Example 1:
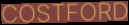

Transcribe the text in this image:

COSTFORD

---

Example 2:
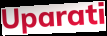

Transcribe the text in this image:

Uparati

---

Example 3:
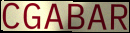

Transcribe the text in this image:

CGABAR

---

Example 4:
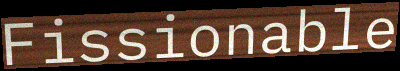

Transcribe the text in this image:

Fissionable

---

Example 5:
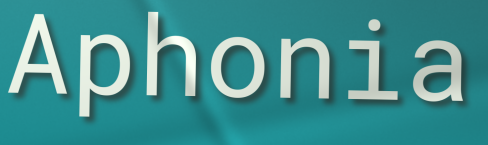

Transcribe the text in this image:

Aphonia